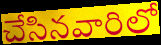
చేసినవారిలో